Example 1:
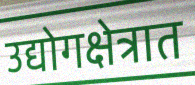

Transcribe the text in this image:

उद्योगक्षेत्रात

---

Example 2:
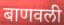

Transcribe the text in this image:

बाणवली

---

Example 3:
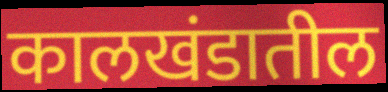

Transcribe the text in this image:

कालखंडातील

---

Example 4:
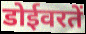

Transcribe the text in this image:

डोईवरतें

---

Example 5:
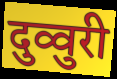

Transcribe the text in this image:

दुव्वुरी